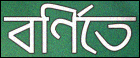
বর্ণিতে